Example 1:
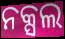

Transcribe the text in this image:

ନକ୍ସଲ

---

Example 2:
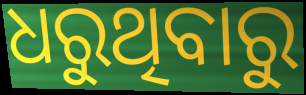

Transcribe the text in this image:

ଧରୁଥିବାରୁ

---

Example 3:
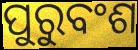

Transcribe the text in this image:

ପୁରୁବଂଶ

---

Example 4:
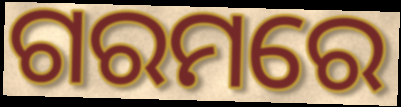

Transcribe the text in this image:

ଗରମରେ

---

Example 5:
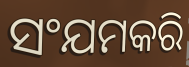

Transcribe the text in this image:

ସଂଯମକରି